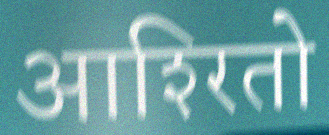
आश्रितो